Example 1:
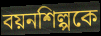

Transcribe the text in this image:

বয়নশিল্পকে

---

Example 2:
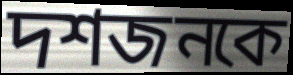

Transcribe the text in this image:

দশজনকে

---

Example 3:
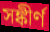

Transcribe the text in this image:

সঙ্কীর্ণ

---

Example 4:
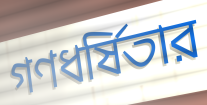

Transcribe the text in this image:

গণধর্ষিতার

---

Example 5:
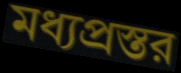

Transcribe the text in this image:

মধ্যপ্রস্তর